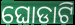
ଘୋଡାଟି